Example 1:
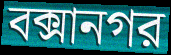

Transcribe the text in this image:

বক্সানগর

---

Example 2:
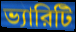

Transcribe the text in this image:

ভ্যারিটি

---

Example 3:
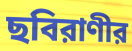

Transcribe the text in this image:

ছবিরাণীর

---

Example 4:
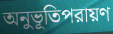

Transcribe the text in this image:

অনুভূতিপরায়ণ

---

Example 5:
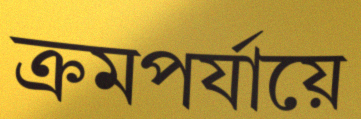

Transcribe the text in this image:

ক্রমপর্যায়ে